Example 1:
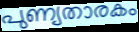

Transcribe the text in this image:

പുണ്യതാരകം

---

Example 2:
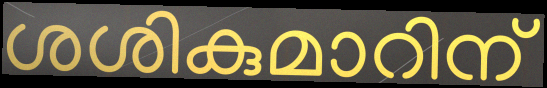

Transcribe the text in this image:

ശശികുമാറിന്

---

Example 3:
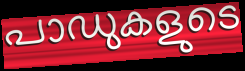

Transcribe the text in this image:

പാഡുകളുടെ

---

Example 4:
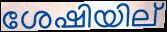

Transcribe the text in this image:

ശേഷിയില്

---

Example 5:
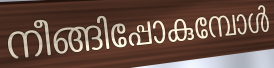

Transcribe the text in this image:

നീങ്ങിപ്പോകുമ്പോൾ